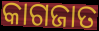
କାଗଜାତ